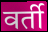
वर्ती